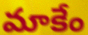
మాకేం